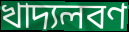
খাদ্যলবণ